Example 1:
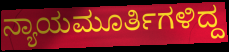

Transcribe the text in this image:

ನ್ಯಾಯಮೂರ್ತಿಗಳಿದ್ದ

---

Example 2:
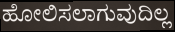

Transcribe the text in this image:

ಹೋಲಿಸಲಾಗುವುದಿಲ್ಲ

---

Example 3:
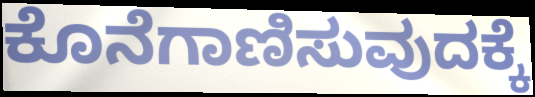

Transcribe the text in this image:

ಕೊನೆಗಾಣಿಸುವುದಕ್ಕೆ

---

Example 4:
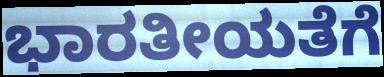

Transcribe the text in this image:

ಭಾರತೀಯತೆಗೆ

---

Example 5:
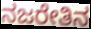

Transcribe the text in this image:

ನಜರೇತಿನ